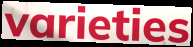
varieties